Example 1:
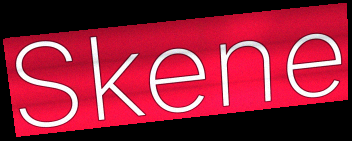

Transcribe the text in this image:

Skene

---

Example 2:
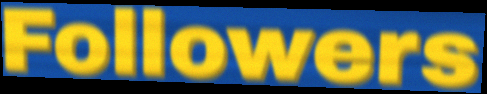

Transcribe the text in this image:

Followers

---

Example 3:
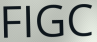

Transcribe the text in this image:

FIGC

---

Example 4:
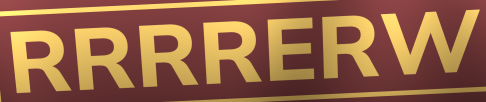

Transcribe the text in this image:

RRRRERW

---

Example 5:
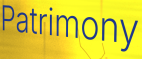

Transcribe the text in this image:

Patrimony